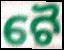
ଚୈ